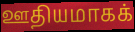
ஊதியமாகக்